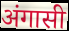
अंगासी